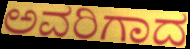
ಅವರಿಗಾದ